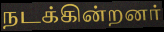
நடக்கின்றனர்